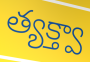
త్యక్త్వా